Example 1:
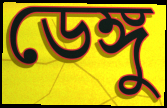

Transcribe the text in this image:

ডেঙ্গু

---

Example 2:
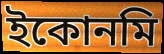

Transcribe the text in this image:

ইকোনমি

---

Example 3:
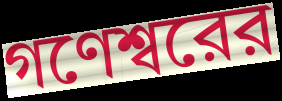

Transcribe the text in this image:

গণেশ্বরের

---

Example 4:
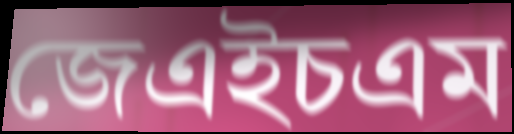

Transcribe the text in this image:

জেএইচএম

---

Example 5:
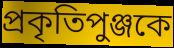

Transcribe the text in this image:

প্রকৃতিপুঞ্জকে